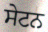
ਸੇਟਨ